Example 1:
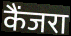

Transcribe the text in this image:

कैंजरा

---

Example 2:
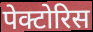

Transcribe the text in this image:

पेक्टोरिस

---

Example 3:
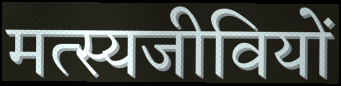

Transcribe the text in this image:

मत्स्यजीवियों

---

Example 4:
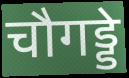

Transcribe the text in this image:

चौगड्डे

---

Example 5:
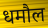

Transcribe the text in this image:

धमौल